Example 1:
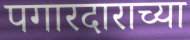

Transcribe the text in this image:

पगारदाराच्या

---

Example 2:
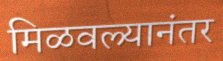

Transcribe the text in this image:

मिळवल्यानंतर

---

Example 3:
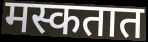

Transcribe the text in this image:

मस्कतात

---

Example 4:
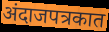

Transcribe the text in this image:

अंदाजपत्रकात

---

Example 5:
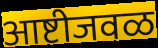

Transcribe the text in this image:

आष्टीजवळ